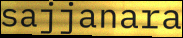
sajjanara